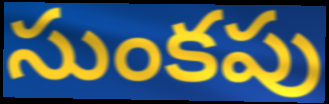
సుంకపు